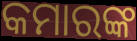
କମାରଙ୍କ